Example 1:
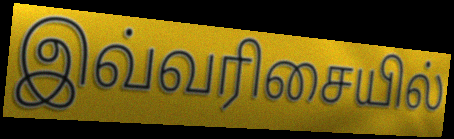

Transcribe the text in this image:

இவ்வரிசையில்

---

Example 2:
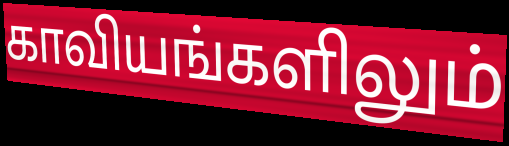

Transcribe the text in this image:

காவியங்களிலும்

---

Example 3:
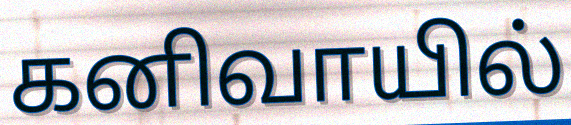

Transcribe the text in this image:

கனிவாயில்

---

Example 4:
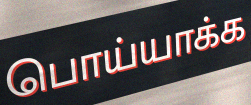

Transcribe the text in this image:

பொய்யாக்க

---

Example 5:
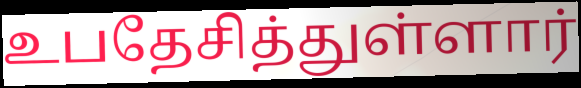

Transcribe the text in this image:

உபதேசித்துள்ளார்